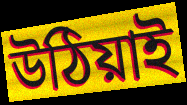
উঠিয়াই